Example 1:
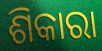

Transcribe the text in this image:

ଶିକାରା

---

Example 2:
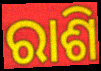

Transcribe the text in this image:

ରାଶି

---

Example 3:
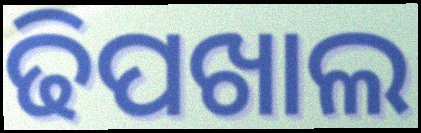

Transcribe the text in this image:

ଢିପଖାଲ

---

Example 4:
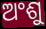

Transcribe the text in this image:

ଅଂଶୁ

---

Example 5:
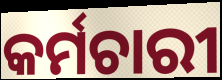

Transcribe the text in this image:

କର୍ମଚାରୀ